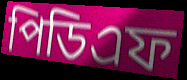
পিডিএফ